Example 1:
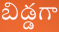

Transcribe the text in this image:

బిడ్డగా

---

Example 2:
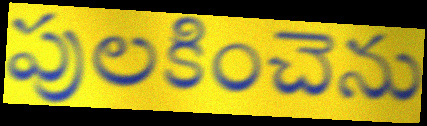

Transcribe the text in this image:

పులకించెను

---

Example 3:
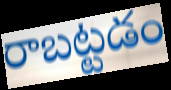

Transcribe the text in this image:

రాబట్టడం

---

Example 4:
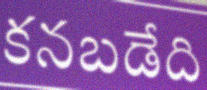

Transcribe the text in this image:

కనబడేది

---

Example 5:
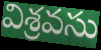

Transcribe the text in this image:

విశ్రవసు